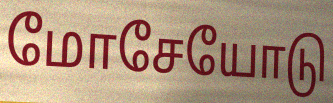
மோசேயோடு